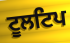
ਟੂਲਟਿਪ